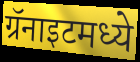
ग्रॅनाइटमध्ये